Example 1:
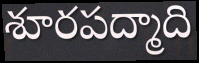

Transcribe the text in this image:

శూరపద్మాది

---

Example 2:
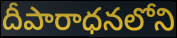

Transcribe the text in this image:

దీపారాధనలోని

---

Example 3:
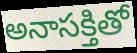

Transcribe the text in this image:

అనాసక్తితో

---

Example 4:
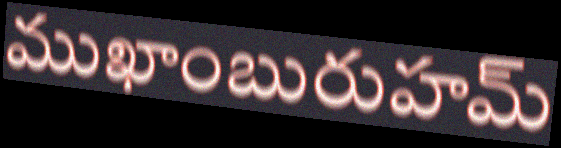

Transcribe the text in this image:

ముఖాంబురుహమ్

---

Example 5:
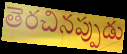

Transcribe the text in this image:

తెరచినప్పుడు